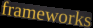
frameworks